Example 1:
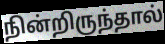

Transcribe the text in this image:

நின்றிருந்தால்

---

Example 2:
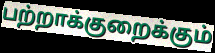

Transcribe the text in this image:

பற்றாக்குறைக்கும்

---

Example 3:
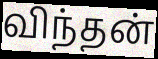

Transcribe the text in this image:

விந்தன்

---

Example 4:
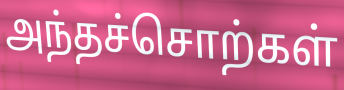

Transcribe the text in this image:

அந்தச்சொற்கள்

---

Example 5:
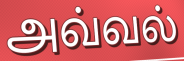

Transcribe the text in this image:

அவ்வல்